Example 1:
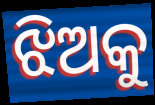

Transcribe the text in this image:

ଝିଅକୁ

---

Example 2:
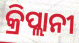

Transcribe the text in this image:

କ୍ରିପ୍ଲାନୀ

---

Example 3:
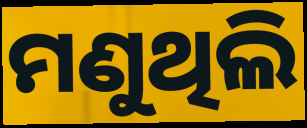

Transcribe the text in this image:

ମଣୁଥିଲି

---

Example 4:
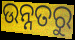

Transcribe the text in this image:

ଉନ୍ନତରୁ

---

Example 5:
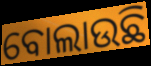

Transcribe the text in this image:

ବୋଲାଉଛି